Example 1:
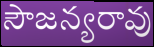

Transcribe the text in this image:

సౌజన్యరావు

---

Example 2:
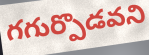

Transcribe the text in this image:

గగుర్పొడవని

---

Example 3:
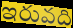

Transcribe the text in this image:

ఇరువది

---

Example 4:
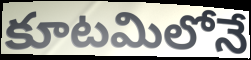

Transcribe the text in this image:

కూటమిలోనే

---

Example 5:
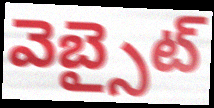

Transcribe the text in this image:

వెబ్సైట్